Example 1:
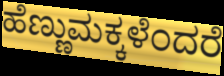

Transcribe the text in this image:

ಹೆಣ್ಣುಮಕ್ಕಳೆಂದರೆ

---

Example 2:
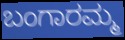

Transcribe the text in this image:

ಬಂಗಾರಮ್ಮ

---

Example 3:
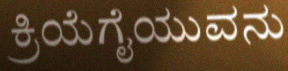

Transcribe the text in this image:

ಕ್ರಿಯೆಗೈಯುವನು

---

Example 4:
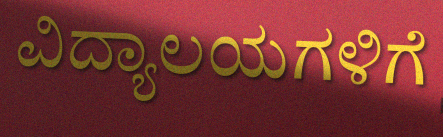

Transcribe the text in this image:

ವಿದ್ಯಾಲಯಗಳಿಗೆ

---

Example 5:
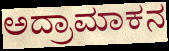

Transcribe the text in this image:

ಅದ್ರಾಮಾಕನ